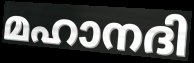
മഹാനദി